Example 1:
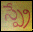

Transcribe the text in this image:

స్ప్రే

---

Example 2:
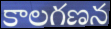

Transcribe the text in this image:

కాలగణన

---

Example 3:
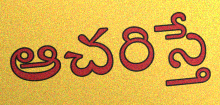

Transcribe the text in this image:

ఆచరిస్తే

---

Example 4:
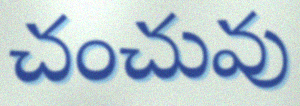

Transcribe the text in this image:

చంచువు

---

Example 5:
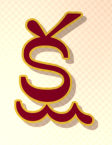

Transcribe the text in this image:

క్ష